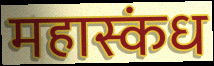
महास्कंध